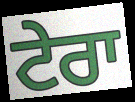
ਟੇਰਾ